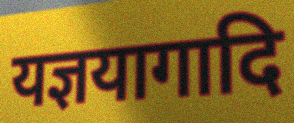
यज्ञयागादि